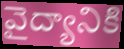
వైద్యానికి